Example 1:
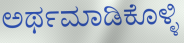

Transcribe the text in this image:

ಅರ್ಥಮಾಡಿಕೊಳ್ಳಿ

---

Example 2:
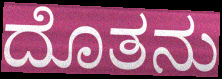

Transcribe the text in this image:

ದೊತನು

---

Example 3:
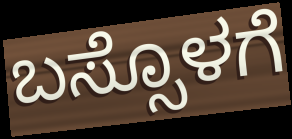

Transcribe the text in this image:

ಬಸ್ಸೊಳಗೆ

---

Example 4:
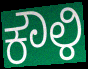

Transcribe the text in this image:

ಕೌಳಿ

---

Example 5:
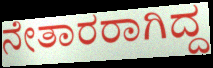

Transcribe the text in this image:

ನೇತಾರರಾಗಿದ್ದ